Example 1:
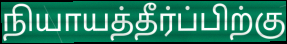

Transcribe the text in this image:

நியாயத்தீர்ப்பிற்கு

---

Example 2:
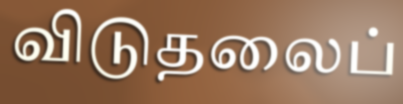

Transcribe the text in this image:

விடுதலைப்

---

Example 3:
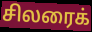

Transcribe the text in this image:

சிலரைக்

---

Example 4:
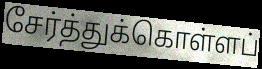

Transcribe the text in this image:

சேர்த்துக்கொள்ளப்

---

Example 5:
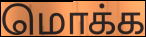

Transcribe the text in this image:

மொக்க